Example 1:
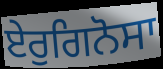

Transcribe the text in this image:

ਏਰੁਗਿਨੋਸਾ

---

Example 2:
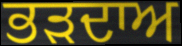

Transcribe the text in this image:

ਭੜਦਾਅ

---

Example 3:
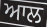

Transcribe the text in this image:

ਆਲ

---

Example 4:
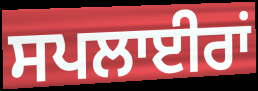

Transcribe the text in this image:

ਸਪਲਾਈਰਾਂ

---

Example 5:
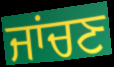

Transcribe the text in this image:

ਜਾਂਚਣ